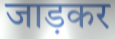
जाड़कर